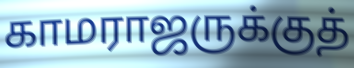
காமராஜருக்குத்